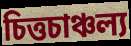
চিত্তচাঞ্চল্য